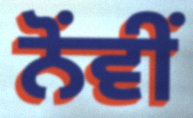
ਨੋਂਵੀਂ